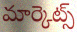
మార్కెట్స్